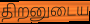
திறனுடைய